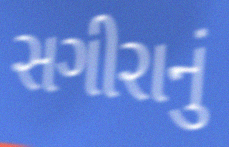
સગીરાનું